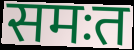
समःत